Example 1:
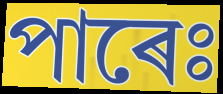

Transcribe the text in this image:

পাৰেঃ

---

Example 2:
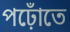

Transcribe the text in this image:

পঢ়োঁতে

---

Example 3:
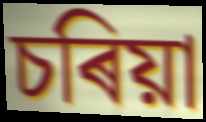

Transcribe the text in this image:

চৰিয়া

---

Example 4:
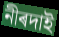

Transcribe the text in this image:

নীৰদাই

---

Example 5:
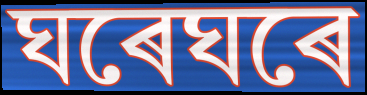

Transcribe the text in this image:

ঘৰেঘৰে